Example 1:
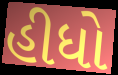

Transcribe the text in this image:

હીધો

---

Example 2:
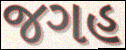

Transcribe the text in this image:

જગહ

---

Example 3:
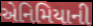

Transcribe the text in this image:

એનિમિયાની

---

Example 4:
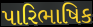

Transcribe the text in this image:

પારિભાષિક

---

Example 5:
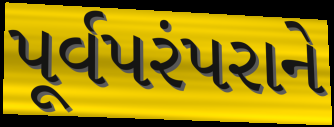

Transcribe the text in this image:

પૂર્વપરંપરાને